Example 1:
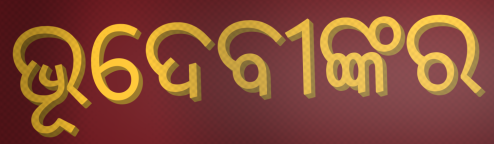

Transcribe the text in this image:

ଭୂଦେବୀଙ୍କର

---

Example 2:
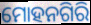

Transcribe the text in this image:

ମୋହନଗିରି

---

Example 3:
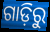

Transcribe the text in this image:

ଗାଡ଼ିରୁ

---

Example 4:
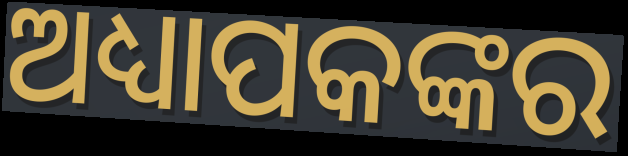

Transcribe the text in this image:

ଅଧ୍ୟାପକଙ୍କର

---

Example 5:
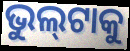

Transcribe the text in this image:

ଭୁଲ୍‍ଟାକୁ